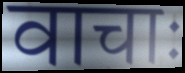
वाचाः